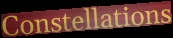
Constellations